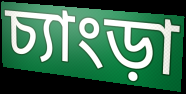
চ্যাংড়া